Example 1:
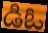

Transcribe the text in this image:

డిఓ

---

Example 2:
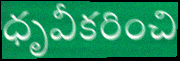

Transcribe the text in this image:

ధృవీకరించి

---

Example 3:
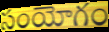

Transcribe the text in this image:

సంయోగం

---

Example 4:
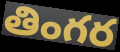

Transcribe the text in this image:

తింగర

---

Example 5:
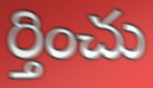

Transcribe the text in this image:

ర్తించు